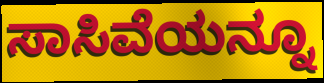
ಸಾಸಿವೆಯನ್ನೂ